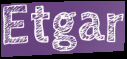
Etgar